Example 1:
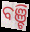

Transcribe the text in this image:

ବଞ୍ଚି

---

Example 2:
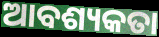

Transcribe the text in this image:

ଆବଶ୍ୟକତା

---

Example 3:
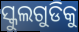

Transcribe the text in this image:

ସ୍କୁଲଗୁଡିକୁ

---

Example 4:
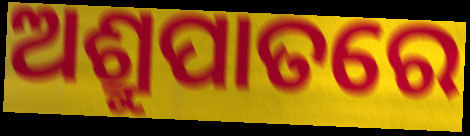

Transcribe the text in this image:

ଅଶ୍ରୁପାତରେ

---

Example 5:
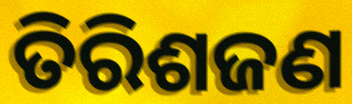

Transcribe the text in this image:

ତିରିଶଜଣ